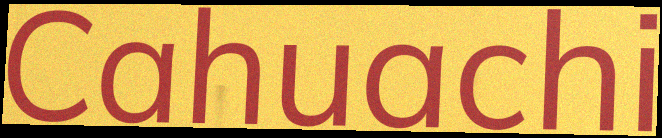
Cahuachi